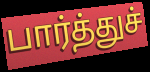
பார்த்துச்